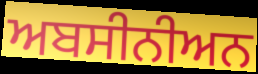
ਅਬਸੀਨੀਅਨ